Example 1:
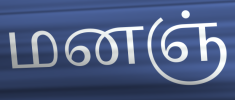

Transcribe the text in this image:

மனஞ்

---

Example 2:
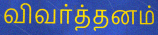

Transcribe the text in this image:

விவர்த்தனம்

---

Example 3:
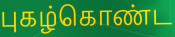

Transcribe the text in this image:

புகழ்கொண்ட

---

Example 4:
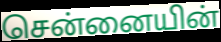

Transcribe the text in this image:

சென்னையின்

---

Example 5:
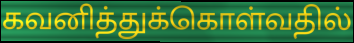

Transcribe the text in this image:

கவனித்துக்கொள்வதில்